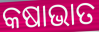
କଷାଭାତ